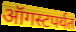
ऑगस्टपर्यत